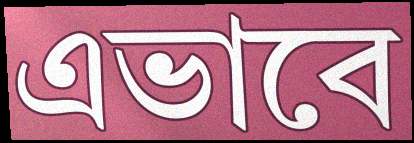
এভাবে